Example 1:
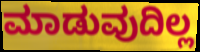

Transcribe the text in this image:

ಮಾಡುವುದಿಲ್ಲ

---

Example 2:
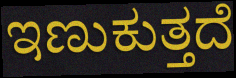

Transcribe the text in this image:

ಇಣುಕುತ್ತದೆ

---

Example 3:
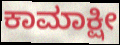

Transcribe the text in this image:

ಕಾಮಾಕ್ಷೀ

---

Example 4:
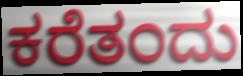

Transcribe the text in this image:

ಕರೆತಂದು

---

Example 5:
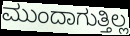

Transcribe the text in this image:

ಮುಂದಾಗುತ್ತಿಲ್ಲ